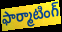
ఫార్మాటింగ్